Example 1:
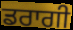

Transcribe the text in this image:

ਡਰਾਗੀ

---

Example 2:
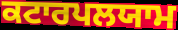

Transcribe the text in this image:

ਕਟਾਰਪਲਯਾਮ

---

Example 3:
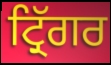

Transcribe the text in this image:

ਟ੍ਰਿੱਗਰ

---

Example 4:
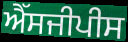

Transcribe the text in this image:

ਐੱਸਜੀਪੀਸ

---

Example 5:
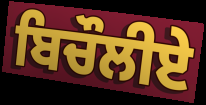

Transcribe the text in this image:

ਬਿਚੌਲੀਏ